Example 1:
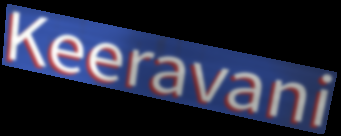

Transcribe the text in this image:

Keeravani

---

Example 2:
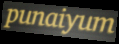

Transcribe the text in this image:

punaiyum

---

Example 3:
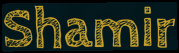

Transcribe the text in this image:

Shamir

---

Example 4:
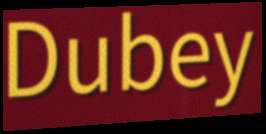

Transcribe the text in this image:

Dubey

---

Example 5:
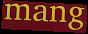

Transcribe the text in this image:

mang